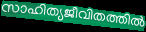
സാഹിത്യജീവിതത്തിൽ